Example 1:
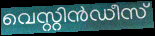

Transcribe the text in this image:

വെസ്റ്റിൻഡീസ്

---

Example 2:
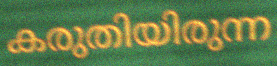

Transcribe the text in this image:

കരുതിയിരുന്ന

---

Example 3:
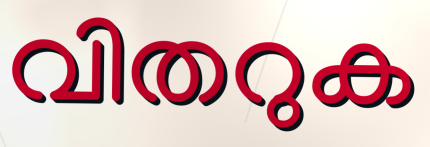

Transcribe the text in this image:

വിതറുക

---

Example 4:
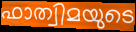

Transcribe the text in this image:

ഫാത്വിമയുടെ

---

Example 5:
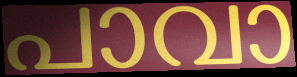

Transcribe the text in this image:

പാവാ